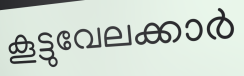
കൂട്ടുവേലക്കാർ